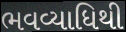
ભવવ્યાધિથી